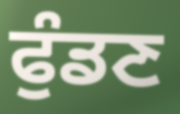
ਫੁੰਡਣ